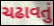
ચઢાવતું